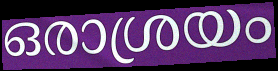
ഒരാശ്രയം